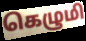
கெழுமி